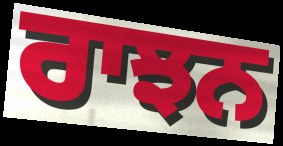
ਰਾਝਨ